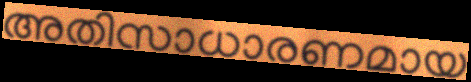
അതിസാധാരണമായ